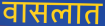
वासलात